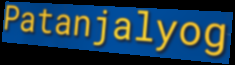
Patanjalyog